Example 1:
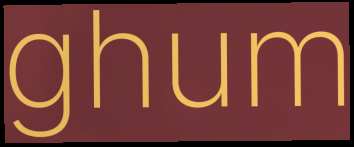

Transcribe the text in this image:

ghum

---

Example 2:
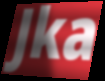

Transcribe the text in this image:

Jka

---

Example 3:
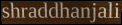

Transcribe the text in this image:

shraddhanjali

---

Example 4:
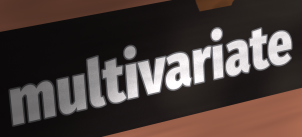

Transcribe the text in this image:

multivariate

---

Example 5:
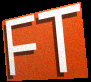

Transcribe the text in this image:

FT